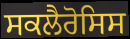
ਸਕਲੈਰੋਸਿਸ